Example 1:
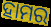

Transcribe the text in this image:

ହାମର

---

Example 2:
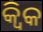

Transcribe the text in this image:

କ୍ୱିକ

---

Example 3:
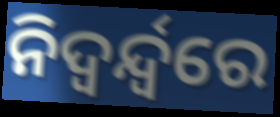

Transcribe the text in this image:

ନିଦ୍ଵର୍ନ୍ଦ୍ୱରେ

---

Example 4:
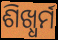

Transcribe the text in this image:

ଶିଖ୍ଧର୍ମ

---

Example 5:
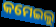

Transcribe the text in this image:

କମେଇଲୁ